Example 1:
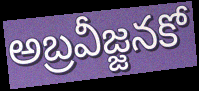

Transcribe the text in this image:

అబ్రవీజ్జనకో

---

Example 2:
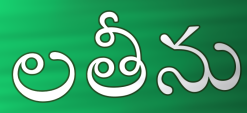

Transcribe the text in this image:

లతీను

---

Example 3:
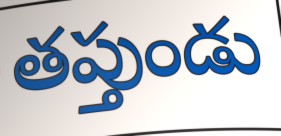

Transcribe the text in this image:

తప్తుండు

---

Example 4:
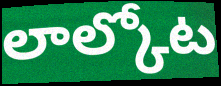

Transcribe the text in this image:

లాల్కోట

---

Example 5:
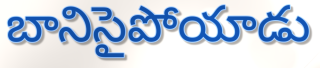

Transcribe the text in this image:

బానిసైపోయాడు